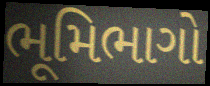
ભૂમિભાગો